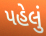
પહેલું